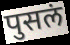
पुसलं